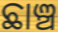
ଛାଞ୍ଚ